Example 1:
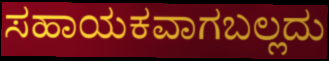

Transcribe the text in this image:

ಸಹಾಯಕವಾಗಬಲ್ಲದು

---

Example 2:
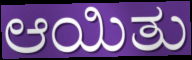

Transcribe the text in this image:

ಆಯಿತು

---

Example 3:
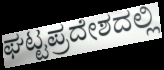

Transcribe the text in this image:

ಘಟ್ಟಪ್ರದೇಶದಲ್ಲಿ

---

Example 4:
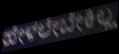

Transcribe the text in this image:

ಹೇಳಲೇಬೇಕಿಲ್ಲ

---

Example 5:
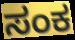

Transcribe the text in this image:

ಸಂಕ